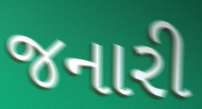
જનારી